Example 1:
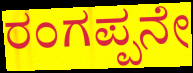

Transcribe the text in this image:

ರಂಗಪ್ಪನೇ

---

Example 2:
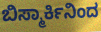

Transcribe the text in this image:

ಬಿಸ್ಮಾರ್ಕಿನಿಂದ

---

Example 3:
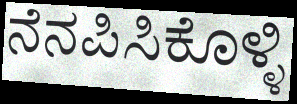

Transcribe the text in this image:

ನೆನಪಿಸಿಕೊಳ್ಳಿ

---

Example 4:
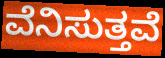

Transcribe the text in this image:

ವೆನಿಸುತ್ತವೆ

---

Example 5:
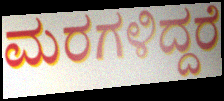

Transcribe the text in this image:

ಮರಗಳಿದ್ದರೆ